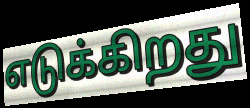
எடுக்கிறது